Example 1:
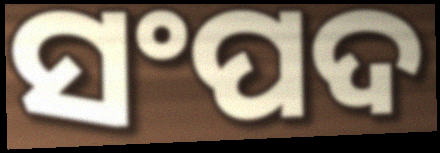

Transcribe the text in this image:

ସଂପଦ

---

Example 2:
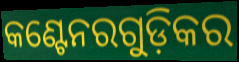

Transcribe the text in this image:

କଣ୍ଟେନରଗୁଡ଼ିକର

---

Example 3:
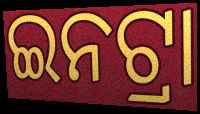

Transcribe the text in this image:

ଇନଟ୍ରା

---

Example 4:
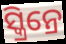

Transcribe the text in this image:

ସ୍କ୍ରିନ୍ରେ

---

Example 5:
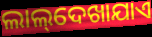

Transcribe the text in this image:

ଲାଲ୍‌ଦେଖାଯାଏ